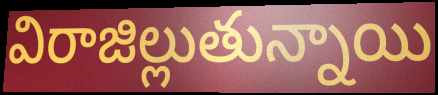
విరాజిల్లుతున్నాయి